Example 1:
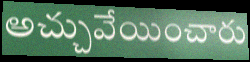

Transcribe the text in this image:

అచ్చువేయించారు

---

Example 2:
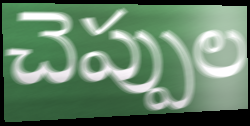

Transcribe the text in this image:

చెప్పుల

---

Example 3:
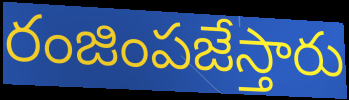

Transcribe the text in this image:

రంజింపజేస్తారు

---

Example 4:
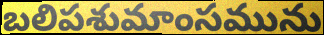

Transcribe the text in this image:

బలిపశుమాంసమును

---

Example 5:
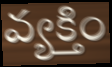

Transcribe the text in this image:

వ్యక్తిం